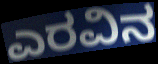
ಎರವಿನ